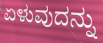
ಏಳುವುದನ್ನು